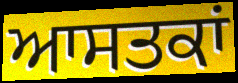
ਆਸਤਕਾਂ